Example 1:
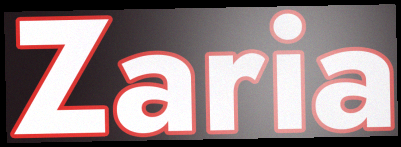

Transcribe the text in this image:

Zaria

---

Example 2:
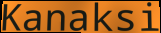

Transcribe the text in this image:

Kanaksi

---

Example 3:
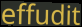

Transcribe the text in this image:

effudit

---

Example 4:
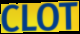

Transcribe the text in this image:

CLOT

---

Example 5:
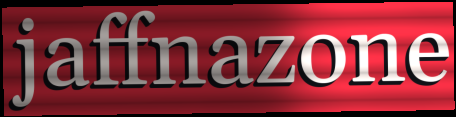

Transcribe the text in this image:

jaffnazone